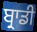
ਬ੍ਰਾਡੀ